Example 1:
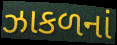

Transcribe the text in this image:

ઝાકળનાં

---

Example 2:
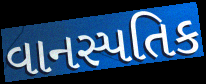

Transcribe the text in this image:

વાનસ્પતિક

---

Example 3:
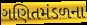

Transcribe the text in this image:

ગણિતમંડળના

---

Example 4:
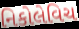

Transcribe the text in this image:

નિકોલેવિચ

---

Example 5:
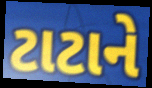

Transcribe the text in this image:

ટાટાને